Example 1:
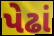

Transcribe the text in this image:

પેઢાં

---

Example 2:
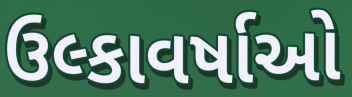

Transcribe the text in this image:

ઉલ્કાવર્ષાઓ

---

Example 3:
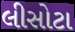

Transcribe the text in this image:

લીસોટા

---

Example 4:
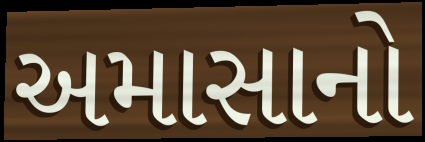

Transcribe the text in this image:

અમાસાનો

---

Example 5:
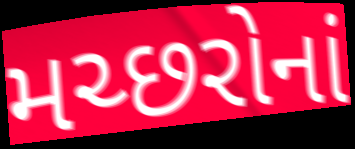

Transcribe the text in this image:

મચ્છરોનાં